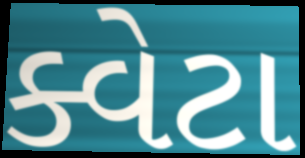
ક્વેટા